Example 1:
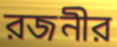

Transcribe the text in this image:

রজনীর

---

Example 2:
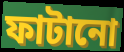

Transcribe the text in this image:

ফাটানো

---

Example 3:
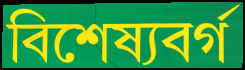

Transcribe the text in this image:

বিশেষ্যবর্গ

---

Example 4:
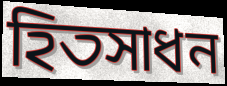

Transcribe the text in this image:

হিতসাধন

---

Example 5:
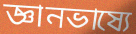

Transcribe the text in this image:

জ্ঞানভাষ্যে